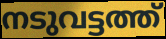
നടുവട്ടത്ത്